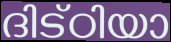
ദിട്ഠിയാ